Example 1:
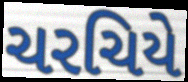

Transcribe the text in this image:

ચરચિયે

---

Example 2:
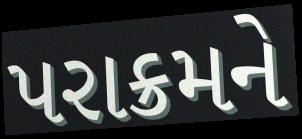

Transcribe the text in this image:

પરાક્રમને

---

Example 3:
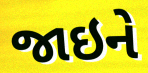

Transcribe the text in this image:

જાઇને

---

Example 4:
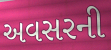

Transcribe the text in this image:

અવસરની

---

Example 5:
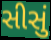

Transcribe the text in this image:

સીસું